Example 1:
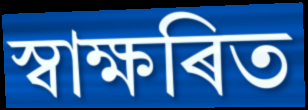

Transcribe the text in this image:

স্বাক্ষৰিত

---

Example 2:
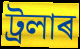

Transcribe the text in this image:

ট্ৰলাৰ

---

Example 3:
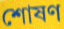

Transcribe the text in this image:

শোষণ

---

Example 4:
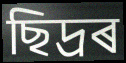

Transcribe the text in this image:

ছিদ্ৰৰ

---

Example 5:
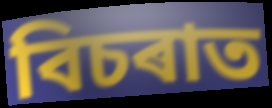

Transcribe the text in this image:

বিচৰাত